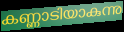
കണ്ണാടിയാകുന്നു